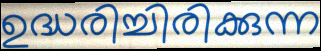
ഉദ്ധരിച്ചിരിക്കുന്ന